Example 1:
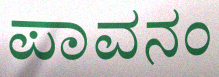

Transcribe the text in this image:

ಪಾವನಂ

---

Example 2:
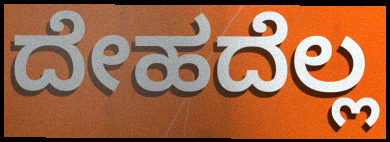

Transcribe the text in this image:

ದೇಹದೆಲ್ಲ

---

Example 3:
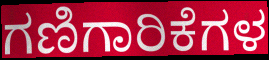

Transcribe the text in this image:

ಗಣಿಗಾರಿಕೆಗಳ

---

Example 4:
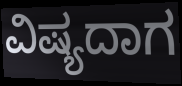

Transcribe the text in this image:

ವಿಷ್ಯದಾಗ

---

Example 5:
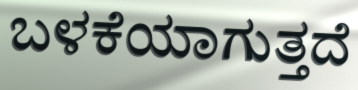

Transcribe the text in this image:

ಬಳಕೆಯಾಗುತ್ತದೆ